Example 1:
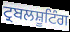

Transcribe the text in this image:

ਟ੍ਰਬਲਸ਼ੂਟਿੰਗ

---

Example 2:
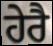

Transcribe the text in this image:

ਹੇਰੈ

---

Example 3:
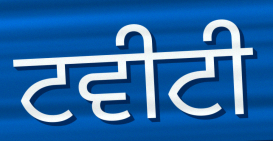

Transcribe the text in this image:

ਟਵੀਟੀ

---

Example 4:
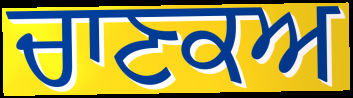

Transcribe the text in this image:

ਚਾਣਕਅ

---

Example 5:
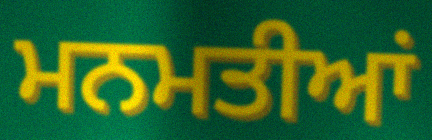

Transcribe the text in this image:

ਮਨਮਤੀਆਂ